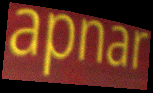
apnar